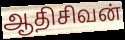
ஆதிசிவன்